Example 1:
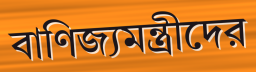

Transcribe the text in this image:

বাণিজ্যমন্ত্রীদের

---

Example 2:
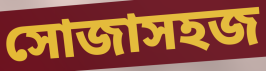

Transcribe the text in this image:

সোজাসহজ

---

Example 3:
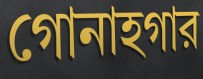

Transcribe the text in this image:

গোনাহগার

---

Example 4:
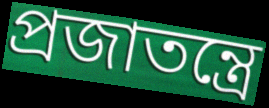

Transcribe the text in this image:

প্রজাতন্ত্রে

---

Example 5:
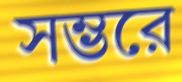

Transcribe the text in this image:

সম্ভরে